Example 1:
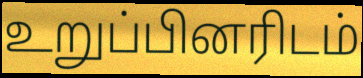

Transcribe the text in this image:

உறுப்பினரிடம்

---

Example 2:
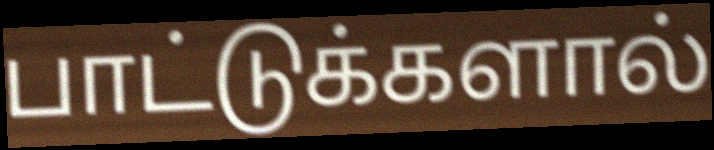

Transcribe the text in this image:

பாட்டுக்களால்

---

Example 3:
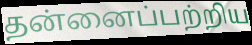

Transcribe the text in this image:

தன்னைப்பற்றிய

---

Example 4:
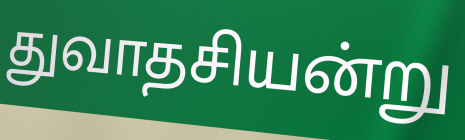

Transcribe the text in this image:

துவாதசியன்று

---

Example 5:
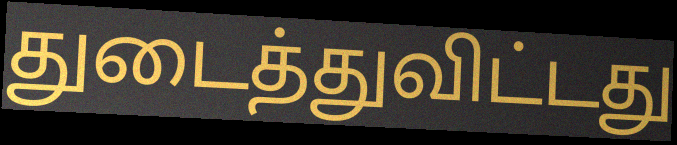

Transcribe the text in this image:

துடைத்துவிட்டது